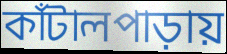
কাঁটালপাড়ায়